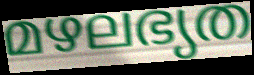
മഴലഭ്യത